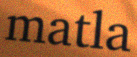
matla